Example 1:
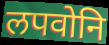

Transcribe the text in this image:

लपवोनि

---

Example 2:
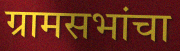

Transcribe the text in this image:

ग्रामसभांचा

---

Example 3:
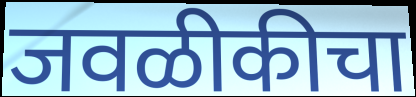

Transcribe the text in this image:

जवळीकीचा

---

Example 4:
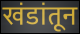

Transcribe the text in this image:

खंडांतून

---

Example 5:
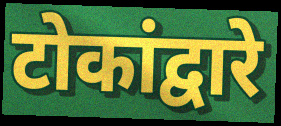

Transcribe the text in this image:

टोकांद्वारे